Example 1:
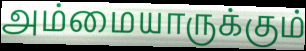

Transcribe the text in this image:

அம்மையாருக்கும்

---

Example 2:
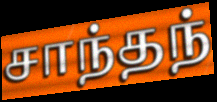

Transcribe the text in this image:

சாந்தந்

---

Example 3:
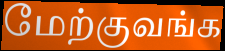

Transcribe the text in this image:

மேற்குவங்க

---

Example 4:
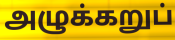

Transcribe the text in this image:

அழுக்கறுப்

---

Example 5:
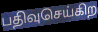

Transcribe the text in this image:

பதிவுசெய்கிற